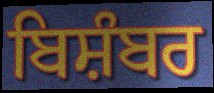
ਬਿਸ਼ੰਬਰ